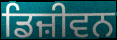
ਡਿਜ਼ੀਵਨ